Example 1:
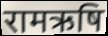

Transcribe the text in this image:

रामऋषि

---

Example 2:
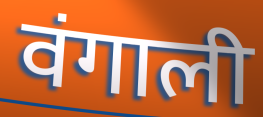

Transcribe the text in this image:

वंगाली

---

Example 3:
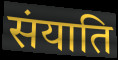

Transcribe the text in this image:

संयाति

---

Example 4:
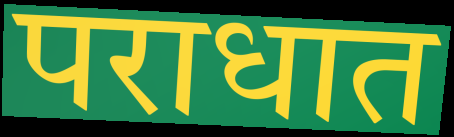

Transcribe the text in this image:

पराधात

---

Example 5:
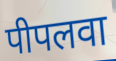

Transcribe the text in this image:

पीपलवा